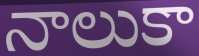
నాలుకా